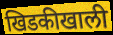
खिडकीखाली